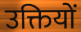
उक्तियों